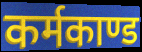
कर्मकाण्ड